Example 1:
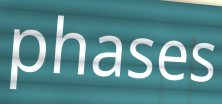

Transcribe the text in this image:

phases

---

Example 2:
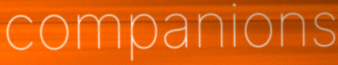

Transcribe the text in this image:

companions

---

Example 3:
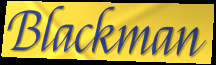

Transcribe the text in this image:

Blackman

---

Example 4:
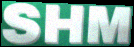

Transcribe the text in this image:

SHM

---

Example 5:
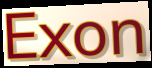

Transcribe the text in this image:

Exon